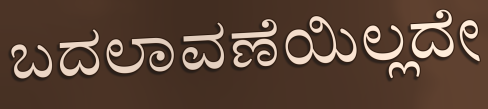
ಬದಲಾವಣೆಯಿಲ್ಲದೇ